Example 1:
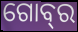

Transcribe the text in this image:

ଗୋବ୍‌ର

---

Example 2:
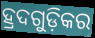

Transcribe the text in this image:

ହ୍ରଦଗୁଡ଼ିକର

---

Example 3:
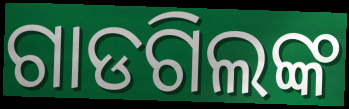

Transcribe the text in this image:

ଗାଡଗିଲଙ୍କ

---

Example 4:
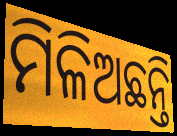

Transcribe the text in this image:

ମିଳିଅଛନ୍ତି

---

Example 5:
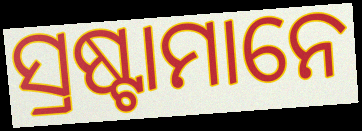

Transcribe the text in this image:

ସ୍ରଷ୍ଟାମାନେ